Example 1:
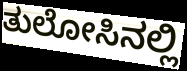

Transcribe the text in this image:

ತುಲೋಸಿನಲ್ಲಿ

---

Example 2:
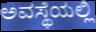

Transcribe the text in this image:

ಅವಸ್ಥೆಯಲ್ಲಿ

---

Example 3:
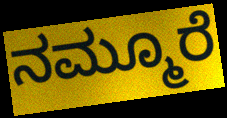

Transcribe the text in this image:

ನಮ್ಮೂರೆ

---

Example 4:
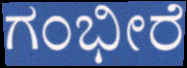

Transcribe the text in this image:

ಗಂಭೀರೆ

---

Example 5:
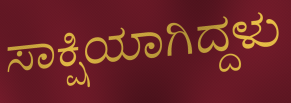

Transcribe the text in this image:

ಸಾಕ್ಷಿಯಾಗಿದ್ದಳು